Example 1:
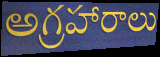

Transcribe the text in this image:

అగ్రహారాలు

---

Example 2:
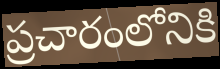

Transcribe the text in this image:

ప్రచారంలోనికి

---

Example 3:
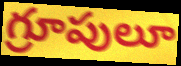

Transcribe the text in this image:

గ్రూపులూ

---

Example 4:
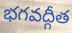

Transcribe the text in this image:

భగవద్గీత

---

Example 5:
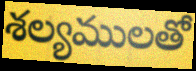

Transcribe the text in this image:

శల్యములతో